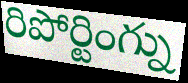
రిపోర్టింగ్ను